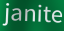
janite